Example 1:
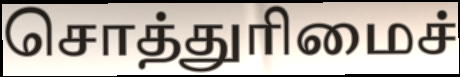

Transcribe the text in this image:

சொத்துரிமைச்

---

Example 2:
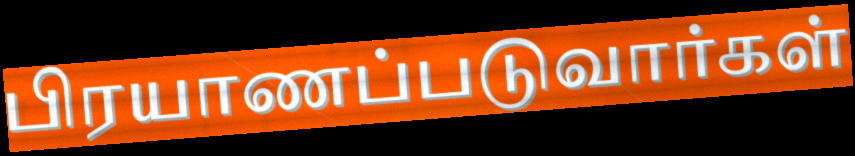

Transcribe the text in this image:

பிரயாணப்படுவார்கள்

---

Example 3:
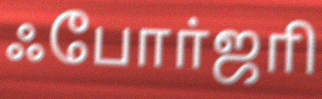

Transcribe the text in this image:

ஃபோர்ஜரி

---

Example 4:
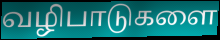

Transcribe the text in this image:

வழிபாடுகளை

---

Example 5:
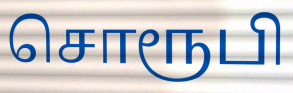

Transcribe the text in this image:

சொரூபி